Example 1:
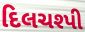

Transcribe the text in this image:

દિલચશ્પી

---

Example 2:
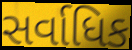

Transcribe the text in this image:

સર્વાધિક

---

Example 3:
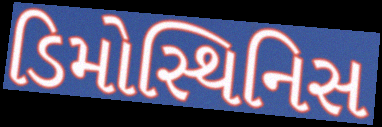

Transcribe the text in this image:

ડિમોસ્થિનિસ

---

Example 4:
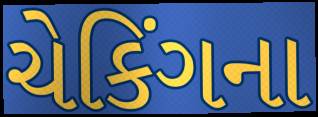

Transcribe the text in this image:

ચેકિંગના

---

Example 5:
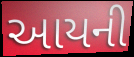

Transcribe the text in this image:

આયની